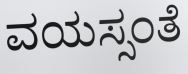
ವಯಸ್ಸಂತೆ